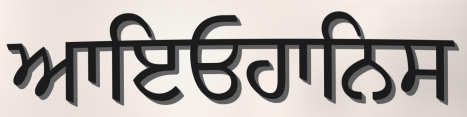
ਆਇਓਹਾਨਿਸ